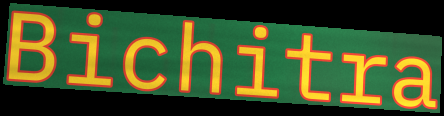
Bichitra